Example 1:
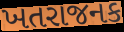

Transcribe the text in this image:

ખતરાજનક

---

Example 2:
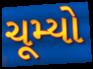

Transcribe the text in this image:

ચૂમ્યો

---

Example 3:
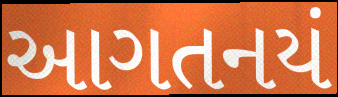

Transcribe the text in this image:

આગતનયં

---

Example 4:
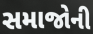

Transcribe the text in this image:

સમાજોની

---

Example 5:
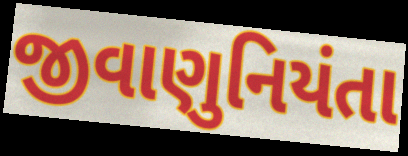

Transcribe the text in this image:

જીવાણુનિયંતા